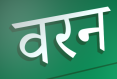
वरन